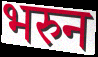
भरुन